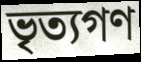
ভৃত্যগণ